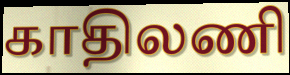
காதிலணி